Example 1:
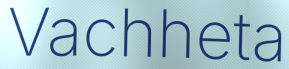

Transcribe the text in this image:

Vachheta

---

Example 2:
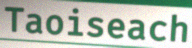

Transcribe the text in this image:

Taoiseach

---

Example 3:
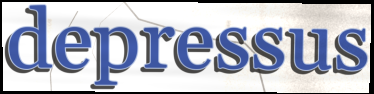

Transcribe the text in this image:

depressus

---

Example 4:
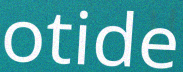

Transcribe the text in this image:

otide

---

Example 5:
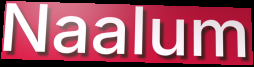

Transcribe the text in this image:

Naalum